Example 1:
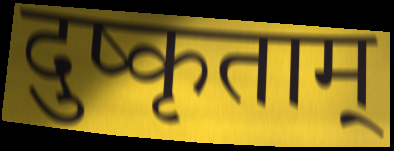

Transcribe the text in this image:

दुष्कृताम्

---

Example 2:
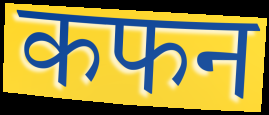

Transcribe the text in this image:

कफन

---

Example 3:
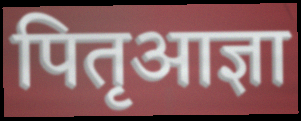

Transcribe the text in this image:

पितृआज्ञा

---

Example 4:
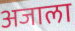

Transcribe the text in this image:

अजाला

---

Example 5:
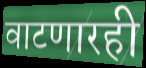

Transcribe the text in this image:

वाटणारही